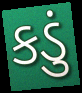
કડું